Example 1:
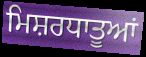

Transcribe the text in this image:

ਮਿਸ਼ਰਧਾਤੂਆਂ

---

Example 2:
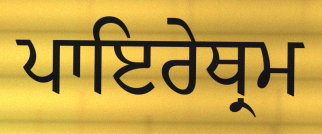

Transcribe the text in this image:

ਪਾਇਰੇਥ੍ਰਮ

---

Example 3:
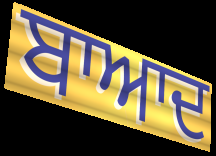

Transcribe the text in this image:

ਬਾਆਦ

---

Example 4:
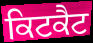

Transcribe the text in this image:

ਕਿਟਕੈਟ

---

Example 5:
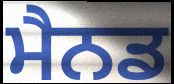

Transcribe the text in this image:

ਮੈਨਡ